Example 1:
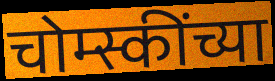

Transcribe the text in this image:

चोम्स्कींच्या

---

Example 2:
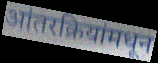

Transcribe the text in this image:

आंतरक्रियांमधून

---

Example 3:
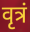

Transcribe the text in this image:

वृत्रं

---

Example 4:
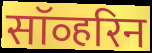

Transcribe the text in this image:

सॉव्हरिन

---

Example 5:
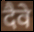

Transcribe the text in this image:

दैवे